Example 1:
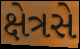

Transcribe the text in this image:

ક્ષેત્રસે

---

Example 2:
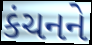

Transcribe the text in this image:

કંચનને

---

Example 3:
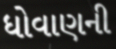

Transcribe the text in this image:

ધોવાણની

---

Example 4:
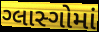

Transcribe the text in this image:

ગ્લાસ્ગોમાં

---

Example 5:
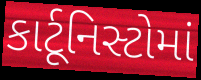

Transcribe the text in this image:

કાર્ટૂનિસ્ટોમાં